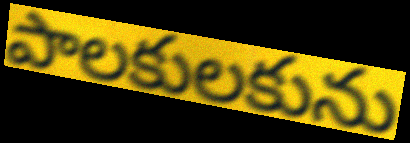
పాలకులకును